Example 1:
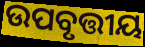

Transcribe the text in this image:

ଉପବୃତ୍ତୀୟ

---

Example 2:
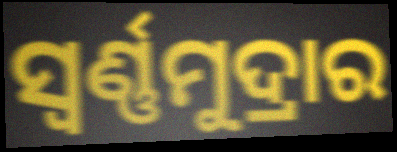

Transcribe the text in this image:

ସ୍ୱର୍ଣ୍ଣମୁଦ୍ରାର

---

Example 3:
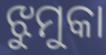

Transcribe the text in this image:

ଝୁମୁକା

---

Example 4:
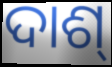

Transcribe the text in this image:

ଦାଶ୍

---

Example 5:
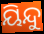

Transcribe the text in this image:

ୟିନ୍ଦୁ